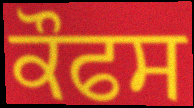
ਕੌਫਸ